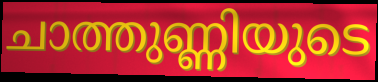
ചാത്തുണ്ണിയുടെ